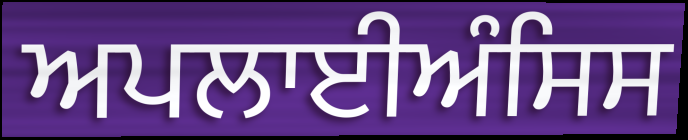
ਅਪਲਾਈਅੰਸਿਸ